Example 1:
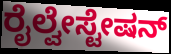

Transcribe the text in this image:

ರೈಲ್ವೇಸ್ಟೇಷನ್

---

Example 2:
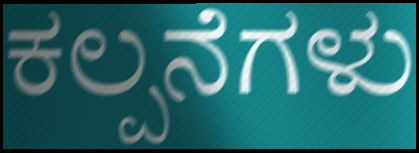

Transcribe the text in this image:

ಕಲ್ಪನೆಗಳು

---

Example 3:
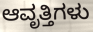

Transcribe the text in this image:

ಆವೃತ್ತಿಗಳು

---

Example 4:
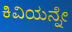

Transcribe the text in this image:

ಕಿವಿಯನ್ನೇ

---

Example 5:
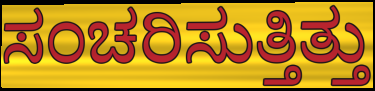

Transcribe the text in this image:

ಸಂಚರಿಸುತ್ತಿತ್ತು